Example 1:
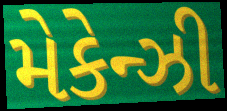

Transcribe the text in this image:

મેકેન્ઝી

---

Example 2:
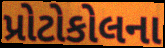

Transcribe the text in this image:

પ્રોટોકોલના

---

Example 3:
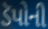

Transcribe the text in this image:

ડૅપોની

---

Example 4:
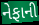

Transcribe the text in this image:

નેફાની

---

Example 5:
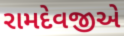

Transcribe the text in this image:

રામદેવજીએ